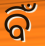
ବିଁ